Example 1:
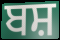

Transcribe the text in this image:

ਬਸ਼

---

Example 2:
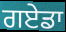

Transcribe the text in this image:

ਗਏਡਾ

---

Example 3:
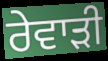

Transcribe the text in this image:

ਰੇਵਾਡ਼ੀ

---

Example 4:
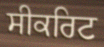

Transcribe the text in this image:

ਸੀਕਰਿਟ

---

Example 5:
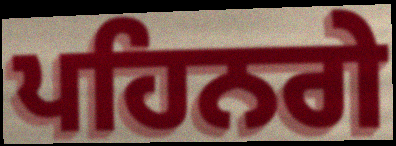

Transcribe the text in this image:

ਪਹਿਨਗੇ